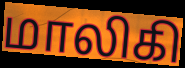
மாலிகி